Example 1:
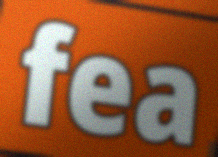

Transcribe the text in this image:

fea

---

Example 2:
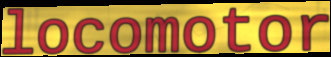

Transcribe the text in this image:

locomotor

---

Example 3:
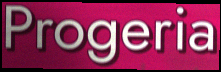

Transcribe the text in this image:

Progeria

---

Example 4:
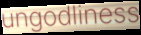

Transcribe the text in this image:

ungodliness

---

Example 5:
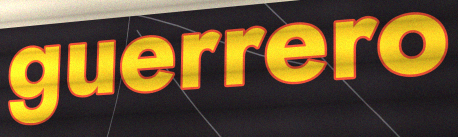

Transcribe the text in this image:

guerrero